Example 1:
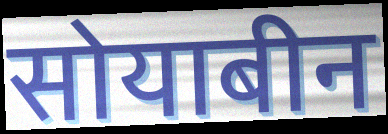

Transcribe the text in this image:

सोयाबीन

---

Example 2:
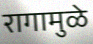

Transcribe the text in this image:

रागामुळे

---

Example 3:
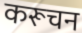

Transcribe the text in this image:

करूचन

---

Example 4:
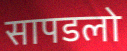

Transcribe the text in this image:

सापडलो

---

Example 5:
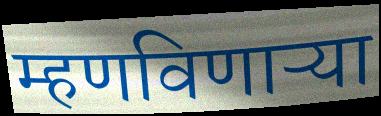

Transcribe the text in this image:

म्हणविणाऱ्या